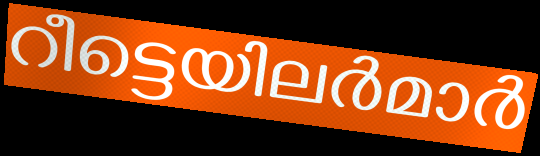
റീട്ടെയിലർമാർ